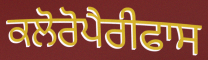
ਕਲੋਰੋਪੈਰੀਫਾਸ